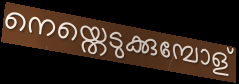
നെയ്തെടുക്കുമ്പോള്